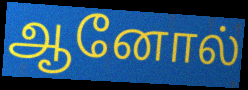
ஆனோல்